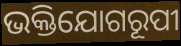
ଭକ୍ତିଯୋଗରୂପୀ